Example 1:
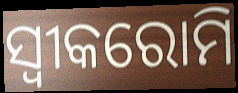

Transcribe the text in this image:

ସ୍ଵୀକରୋମି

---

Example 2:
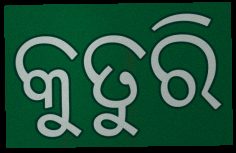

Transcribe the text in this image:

କୁତୁରି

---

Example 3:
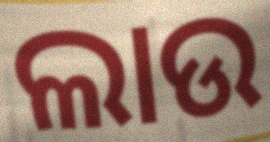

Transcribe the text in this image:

ଲାଉ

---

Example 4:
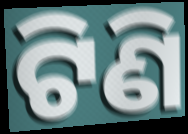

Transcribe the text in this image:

ଟିଣି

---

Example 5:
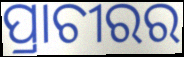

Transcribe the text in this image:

ପ୍ରାଚୀରର